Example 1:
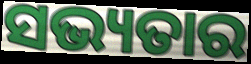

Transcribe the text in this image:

ସଭ୍ୟତାର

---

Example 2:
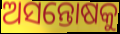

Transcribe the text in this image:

ଅସନ୍ତୋଷକୁ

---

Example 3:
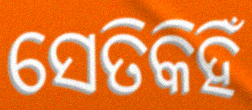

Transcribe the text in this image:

ସେତିକିହିଁ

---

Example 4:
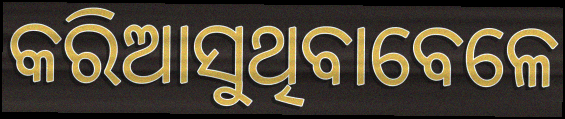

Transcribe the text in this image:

କରିଆସୁଥିବାବେଳେ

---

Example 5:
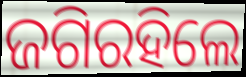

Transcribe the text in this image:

ଜଗିରହିଲେ